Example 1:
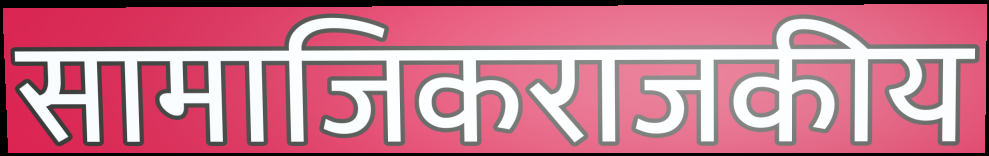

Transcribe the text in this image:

सामाजिकराजकीय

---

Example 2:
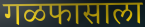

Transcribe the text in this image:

गळफासाला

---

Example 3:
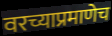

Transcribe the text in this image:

वरच्याप्रमाणेच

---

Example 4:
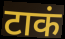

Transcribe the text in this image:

टाकं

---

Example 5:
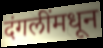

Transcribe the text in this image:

दंगलींमधून